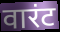
वारंट